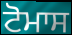
ਟੋਮਾਸ